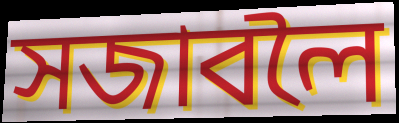
সজাবলৈ